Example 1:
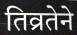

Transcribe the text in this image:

तिव्रतेने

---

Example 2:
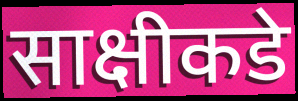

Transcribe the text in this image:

साक्षीकडे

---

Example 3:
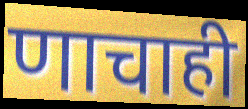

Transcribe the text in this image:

णाचाही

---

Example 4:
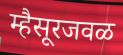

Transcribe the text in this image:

म्हैसूरजवळ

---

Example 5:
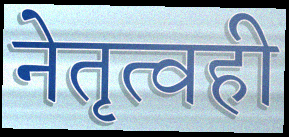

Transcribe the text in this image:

नेतृत्वही